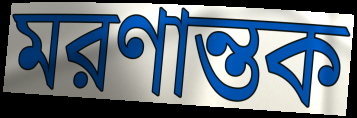
মরণান্তক